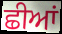
ਛੀਆਂ